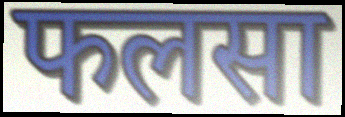
फलसा